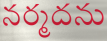
నర్మదను